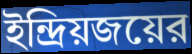
ইন্দ্রিয়জয়ের